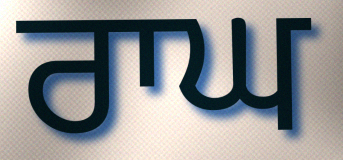
ਰਾਘ